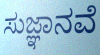
ಸುಜ್ಞಾನವೆ